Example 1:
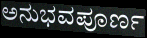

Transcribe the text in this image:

ಅನುಭವಪೂರ್ಣ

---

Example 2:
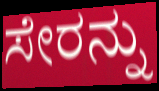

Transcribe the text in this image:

ಸೇರನ್ನು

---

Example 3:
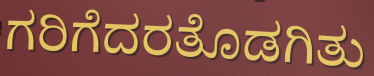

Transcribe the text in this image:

ಗರಿಗೆದರತೊಡಗಿತು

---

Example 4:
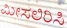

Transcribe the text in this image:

ಮೀಸಲಿರಿಸಿ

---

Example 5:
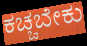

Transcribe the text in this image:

ಕಚ್ಚಬೇಕು